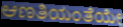
ಆಣತಿಯಂತೆಯೇ